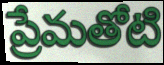
ప్రేమతోటి